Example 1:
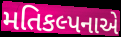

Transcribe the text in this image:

મતિકલ્પનાએ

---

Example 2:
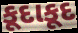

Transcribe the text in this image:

કૂદાકૂદ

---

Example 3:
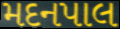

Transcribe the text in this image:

મદનપાલ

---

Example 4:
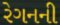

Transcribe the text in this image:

રેગનની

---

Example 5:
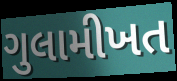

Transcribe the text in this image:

ગુલામીખત